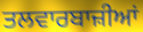
ਤਲਵਾਰਬਾਜ਼ੀਆਂ